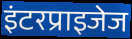
इंटरप्राइजेज